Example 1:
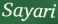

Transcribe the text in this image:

Sayari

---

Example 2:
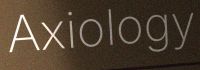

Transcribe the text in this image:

Axiology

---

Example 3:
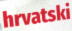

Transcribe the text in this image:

hrvatski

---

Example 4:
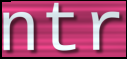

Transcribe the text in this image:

ntr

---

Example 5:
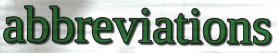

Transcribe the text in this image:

abbreviations